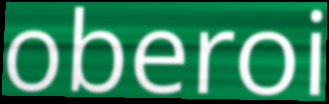
oberoi